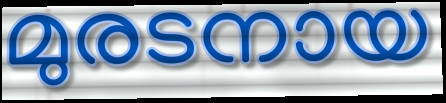
മുരടനായ